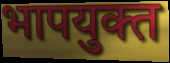
भापयुक्त